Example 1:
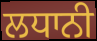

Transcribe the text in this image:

ਲਧਾਨੀ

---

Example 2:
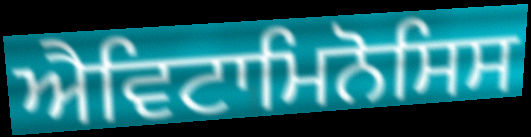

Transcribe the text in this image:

ਐਵਿਟਾਮਿਨੋਸਿਸ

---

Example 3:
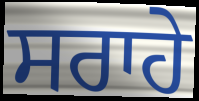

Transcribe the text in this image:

ਸਰਾਹੇ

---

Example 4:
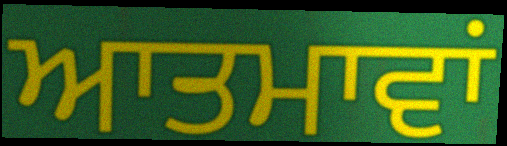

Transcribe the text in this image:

ਆਤਮਾਵਾਂ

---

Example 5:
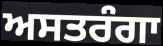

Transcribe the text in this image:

ਅਸਤਰੰਗਾ